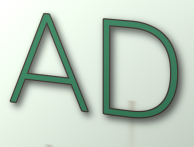
AD